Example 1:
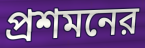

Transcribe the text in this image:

প্রশমনের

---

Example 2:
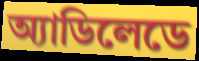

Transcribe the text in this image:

অ্যাডিলেডে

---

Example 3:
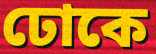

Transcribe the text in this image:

ঢোকে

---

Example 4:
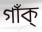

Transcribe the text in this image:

গাঁক্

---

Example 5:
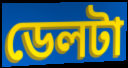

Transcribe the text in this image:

ডেলটা